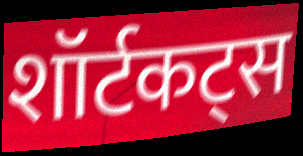
शॉर्टकट्स